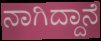
ನಾಗಿದ್ದಾನೆ